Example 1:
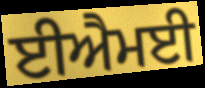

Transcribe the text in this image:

ਈਐਮਈ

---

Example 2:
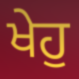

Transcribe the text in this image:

ਖੇਹੁ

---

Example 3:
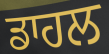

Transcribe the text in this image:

ਡਾਹਲ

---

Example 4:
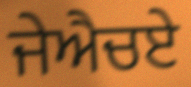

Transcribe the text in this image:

ਜੇਐਚਏ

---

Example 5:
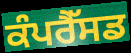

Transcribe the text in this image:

ਕੰਪਰੈੱਸਡ